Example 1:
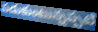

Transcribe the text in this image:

పడుకుంటున్నప్పటి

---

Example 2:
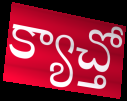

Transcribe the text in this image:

క్యాచ్తో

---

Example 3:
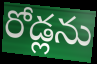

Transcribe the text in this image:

రోడ్లను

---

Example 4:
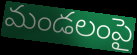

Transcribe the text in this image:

మండలంపై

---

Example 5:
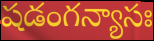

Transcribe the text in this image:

షడంగన్యాసః